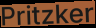
Pritzker